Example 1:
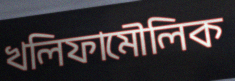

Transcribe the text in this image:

খলিফামৌলিক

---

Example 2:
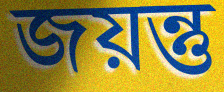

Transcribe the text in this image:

জয়ন্তু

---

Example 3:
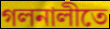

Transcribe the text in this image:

গলনালীতে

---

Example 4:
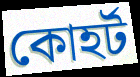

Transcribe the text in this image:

কোহর্ট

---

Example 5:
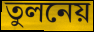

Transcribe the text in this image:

তুলনেয়